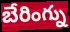
బేరింగ్ను